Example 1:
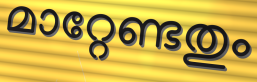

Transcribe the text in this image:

മാറ്റേണ്ടതും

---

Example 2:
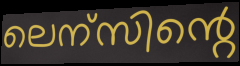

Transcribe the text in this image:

ലെന്സിന്റെ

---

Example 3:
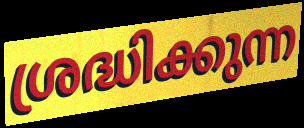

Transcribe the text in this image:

ശ്രദ്ധിക്കുന്ന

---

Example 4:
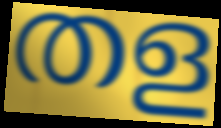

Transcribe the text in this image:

തള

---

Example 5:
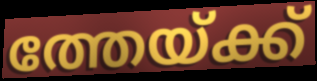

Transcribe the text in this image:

ത്തേയ്ക്ക്